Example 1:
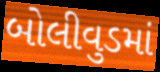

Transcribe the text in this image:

બોલીવુડમાં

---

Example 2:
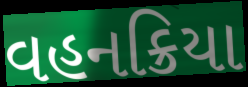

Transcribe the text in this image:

વહનક્રિયા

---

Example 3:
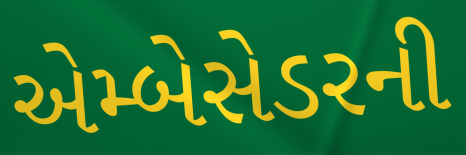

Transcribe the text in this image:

એમ્બેસેડરની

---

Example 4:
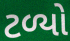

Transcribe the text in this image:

ટળ્યો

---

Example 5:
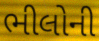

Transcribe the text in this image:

ભીલોની